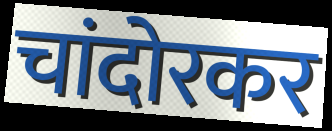
चांदोरकर